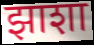
झाशा